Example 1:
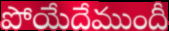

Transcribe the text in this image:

పోయేదేముందీ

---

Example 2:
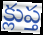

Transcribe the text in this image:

క్లుప్త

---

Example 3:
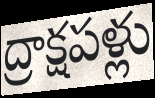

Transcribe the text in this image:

ద్రాక్షపళ్లు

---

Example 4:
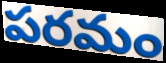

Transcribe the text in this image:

పరమం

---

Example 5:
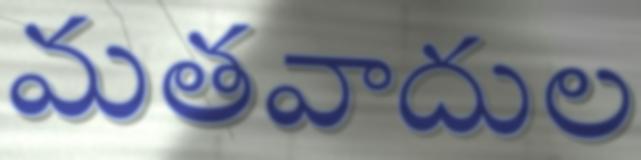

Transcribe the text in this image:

మతవాదుల